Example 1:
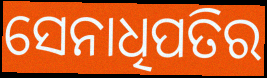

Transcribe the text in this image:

ସେନାଧିପତିର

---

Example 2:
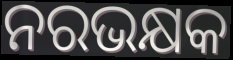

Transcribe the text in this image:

ନରଭକ୍ଷକ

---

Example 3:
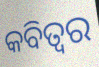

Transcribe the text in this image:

କବିତ୍ଵର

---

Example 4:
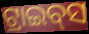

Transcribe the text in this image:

ଟ୍ରାଇବ୍‌ସ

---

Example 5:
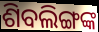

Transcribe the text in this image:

ଶିବଲିଙ୍ଗଙ୍କ